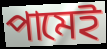
পামেই